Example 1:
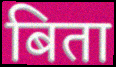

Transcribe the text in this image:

बिता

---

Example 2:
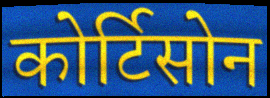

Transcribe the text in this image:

कोर्टिसोन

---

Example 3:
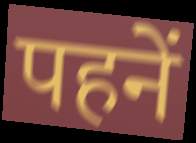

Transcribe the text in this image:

पहनें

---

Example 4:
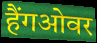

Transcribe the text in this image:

हैंगओवर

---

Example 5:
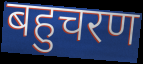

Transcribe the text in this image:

बहुचरण